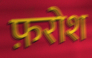
फ़रोश